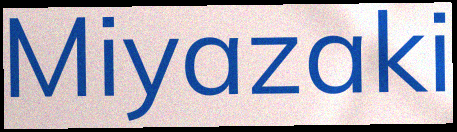
Miyazaki